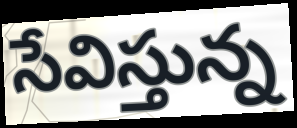
సేవిస్తున్న